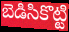
బెడిసికొట్టి